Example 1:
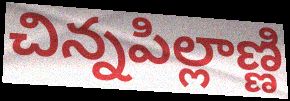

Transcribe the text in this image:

చిన్నపిల్లాణ్ణి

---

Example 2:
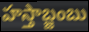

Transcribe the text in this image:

హస్తాబ్జంబు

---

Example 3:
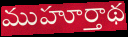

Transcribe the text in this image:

ముహూర్తాథ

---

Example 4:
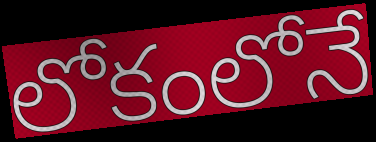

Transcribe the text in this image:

లోకంలోనే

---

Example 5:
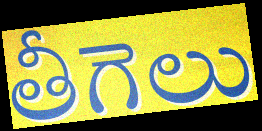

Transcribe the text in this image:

తీగెలు